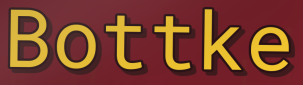
Bottke